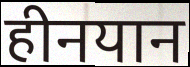
हीनयान